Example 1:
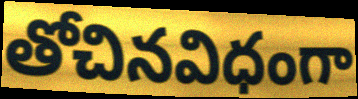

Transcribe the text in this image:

తోచినవిధంగా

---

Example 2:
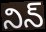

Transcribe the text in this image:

నిన్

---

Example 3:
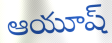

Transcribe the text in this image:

ఆయూష్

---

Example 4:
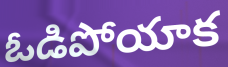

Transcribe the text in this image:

ఓడిపోయాక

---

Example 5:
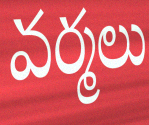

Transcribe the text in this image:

వర్మలు